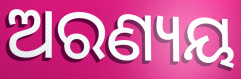
ଅରଣ୍ୟୟ